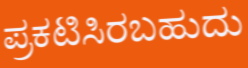
ಪ್ರಕಟಿಸಿರಬಹುದು